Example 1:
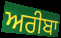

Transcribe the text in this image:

ਅਰੀਬਾ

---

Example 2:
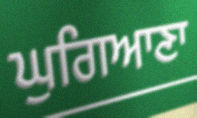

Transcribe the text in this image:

ਘੁਗਿਆਣਾ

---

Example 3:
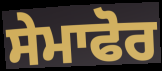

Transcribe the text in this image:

ਸੇਮਾਫੋਰ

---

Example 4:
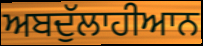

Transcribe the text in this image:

ਅਬਦੁੱਲਾਹੀਆਨ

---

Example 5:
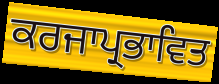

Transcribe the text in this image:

ਕਰਜਾਪ੍ਰਭਾਵਿਤ